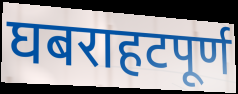
घबराहटपूर्ण